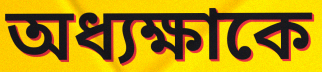
অধ্যক্ষাকে